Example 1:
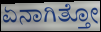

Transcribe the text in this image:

ಏನಾಗಿತ್ತೋ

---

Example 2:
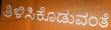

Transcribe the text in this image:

ತಿಳಿಸಿಕೊಡುವಂತೆ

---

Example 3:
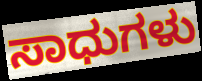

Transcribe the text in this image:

ಸಾಧುಗಳು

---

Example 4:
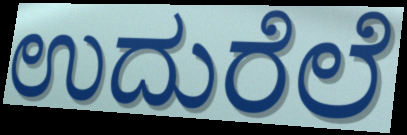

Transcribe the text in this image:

ಉದುರೆಲೆ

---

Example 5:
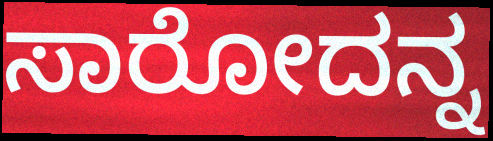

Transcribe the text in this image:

ಸಾರೋದನ್ನ